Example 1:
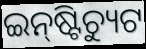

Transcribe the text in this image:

ଇନ୍‌ଷ୍ଟିଚ୍ୟୁଟ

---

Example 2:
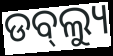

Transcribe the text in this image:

ଡବ୍‌ଲ୍ୟୁ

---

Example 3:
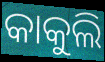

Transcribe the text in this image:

କାକୁଲି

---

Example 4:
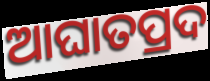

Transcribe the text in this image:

ଆଘାତପ୍ରଦ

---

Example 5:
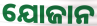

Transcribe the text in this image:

ଯୋଜାନ